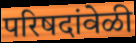
परिषदांवेळी